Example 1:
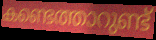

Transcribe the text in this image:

കണ്ടെത്താറുണ്ട്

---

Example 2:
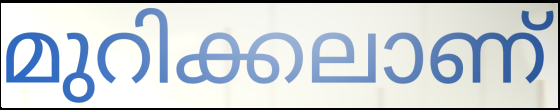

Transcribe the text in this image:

മുറിക്കലാണ്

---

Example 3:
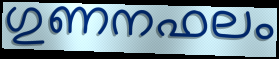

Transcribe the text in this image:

ഗുണനഫലം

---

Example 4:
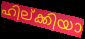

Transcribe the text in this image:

ഹില്ക്കിയാ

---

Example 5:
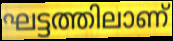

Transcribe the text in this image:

ഘട്ടത്തിലാണ്